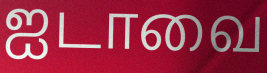
ஐடாவை